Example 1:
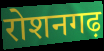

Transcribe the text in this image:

रोशनगढ़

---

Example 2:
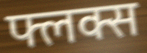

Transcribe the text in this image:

फ्लक्स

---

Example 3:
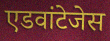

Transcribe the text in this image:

एडवांटेजेस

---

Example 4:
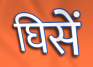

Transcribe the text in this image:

घिसें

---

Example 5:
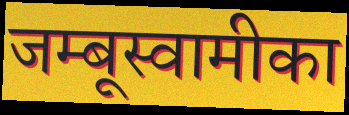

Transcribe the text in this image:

जम्बूस्वामीका